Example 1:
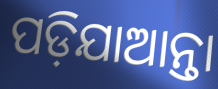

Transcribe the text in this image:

ପଡ଼ିଯାଆନ୍ତା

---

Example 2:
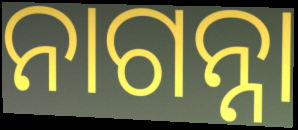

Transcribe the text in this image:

ନାଗନ୍ନା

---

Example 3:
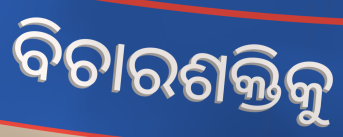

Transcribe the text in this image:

ବିଚାରଶକ୍ତିକୁ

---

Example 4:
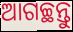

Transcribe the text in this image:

ଆଗଚ୍ଛନ୍ତୁ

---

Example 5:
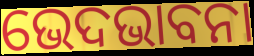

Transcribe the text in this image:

ଭେଦଭାବନା